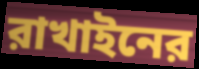
রাখাইনের